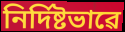
নিৰ্দিষ্টভাৱে